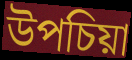
উপচিয়া